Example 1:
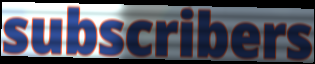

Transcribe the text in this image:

subscribers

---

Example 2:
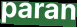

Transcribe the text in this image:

paran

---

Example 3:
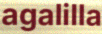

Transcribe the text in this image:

agalilla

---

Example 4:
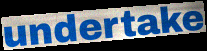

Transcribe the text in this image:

undertake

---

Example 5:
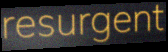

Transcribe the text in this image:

resurgent